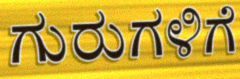
ಗುರುಗಳಿಗೆ